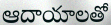
ఆదాయాలతో